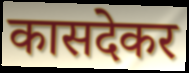
कासदेकर